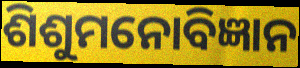
ଶିଶୁମନୋବିଜ୍ଞାନ